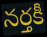
నర్తకీ